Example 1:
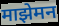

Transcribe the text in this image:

माझेमन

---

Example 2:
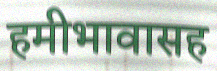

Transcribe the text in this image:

हमीभावासह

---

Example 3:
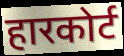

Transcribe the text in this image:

हारकोर्ट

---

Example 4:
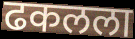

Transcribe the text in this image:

ढकलला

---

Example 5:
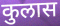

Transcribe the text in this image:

कुलास